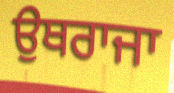
ਉਥਰਾਜਾ